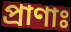
প্রাণাঃ